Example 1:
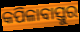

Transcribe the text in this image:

କପିଳାବାସ୍ତୁର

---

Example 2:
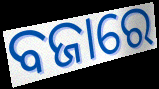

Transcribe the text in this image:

ବଜାରେ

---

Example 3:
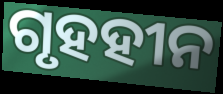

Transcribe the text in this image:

ଗୃହହୀନ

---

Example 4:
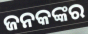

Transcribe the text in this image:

ଜନକଙ୍କର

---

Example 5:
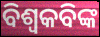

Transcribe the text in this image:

ବିଶ୍ୱକବିଙ୍କ